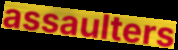
assaulters